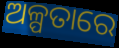
ଅଳ୍ପତାରେ